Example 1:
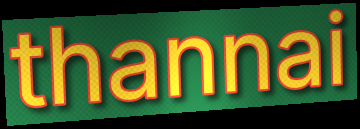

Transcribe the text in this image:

thannai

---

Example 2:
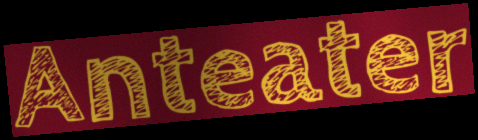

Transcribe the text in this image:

Anteater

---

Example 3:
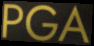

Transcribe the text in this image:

PGA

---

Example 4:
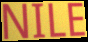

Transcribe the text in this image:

NILE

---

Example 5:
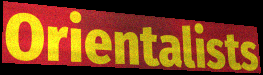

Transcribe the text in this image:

Orientalists